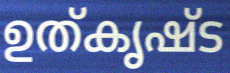
ഉത്കൃഷ്ട